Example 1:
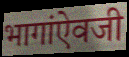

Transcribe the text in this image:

भागांऐवजी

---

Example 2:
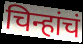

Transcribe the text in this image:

चिन्हांचं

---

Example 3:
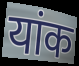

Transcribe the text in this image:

यांक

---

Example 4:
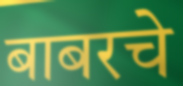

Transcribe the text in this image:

बाबरचे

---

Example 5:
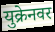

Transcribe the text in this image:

युक्रेनवर